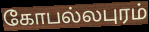
கோபல்லபுரம்